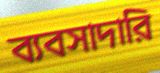
ব্যবসাদারি